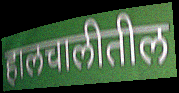
हालचालीतील